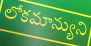
లోకమాన్యుని